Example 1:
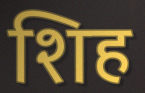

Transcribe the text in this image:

शिह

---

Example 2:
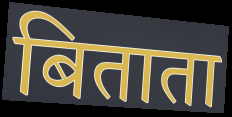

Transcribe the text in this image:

बिताता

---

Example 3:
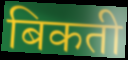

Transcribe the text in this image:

बिकती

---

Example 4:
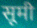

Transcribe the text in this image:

सूमी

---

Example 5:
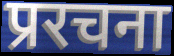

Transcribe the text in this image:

प्ररचना